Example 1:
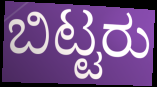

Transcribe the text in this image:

ಬಿಟ್ಟರು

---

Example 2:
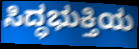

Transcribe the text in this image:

ಸಿದ್ಧಭುಕ್ತಿಯ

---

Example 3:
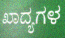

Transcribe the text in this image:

ಖಾದ್ಯಗಳ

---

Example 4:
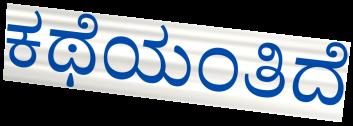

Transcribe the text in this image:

ಕಥೆಯಂತಿದೆ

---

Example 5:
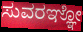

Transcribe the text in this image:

ಸುವರಞ್ಞೋ